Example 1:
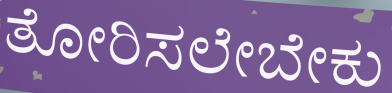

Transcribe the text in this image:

ತೋರಿಸಲೇಬೇಕು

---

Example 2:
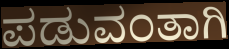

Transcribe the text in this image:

ಪಡುವಂತಾಗಿ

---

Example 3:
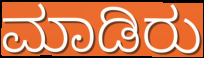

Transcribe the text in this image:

ಮಾಡಿರು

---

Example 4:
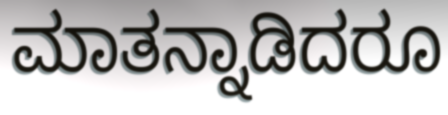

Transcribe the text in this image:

ಮಾತನ್ನಾಡಿದರೂ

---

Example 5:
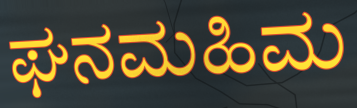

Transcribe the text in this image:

ಘನಮಹಿಮ